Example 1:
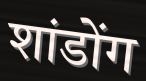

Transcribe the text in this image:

शांडोंग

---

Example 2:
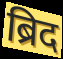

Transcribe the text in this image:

ब्रिद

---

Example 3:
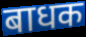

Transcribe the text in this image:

बाधक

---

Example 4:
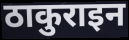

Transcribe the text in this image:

ठाकुराइन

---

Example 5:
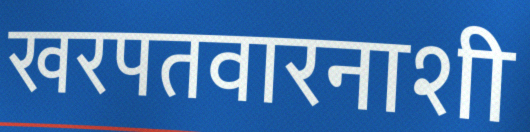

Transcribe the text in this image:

खरपतवारनाशी